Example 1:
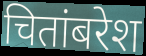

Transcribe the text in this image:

चितांबरेश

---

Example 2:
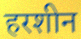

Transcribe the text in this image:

हरशीन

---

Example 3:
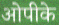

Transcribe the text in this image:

ओपीके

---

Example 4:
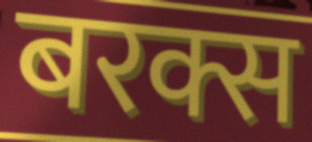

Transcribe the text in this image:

बरक्स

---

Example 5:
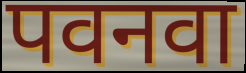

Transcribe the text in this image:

पवनवा